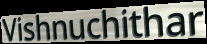
Vishnuchithar